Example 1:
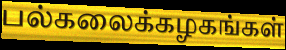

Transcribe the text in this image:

பல்கலைக்கழகங்கள்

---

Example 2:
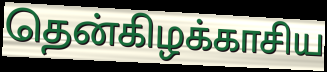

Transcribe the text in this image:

தென்கிழக்காசிய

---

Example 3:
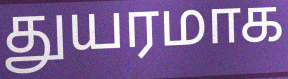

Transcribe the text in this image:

துயரமாக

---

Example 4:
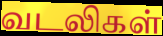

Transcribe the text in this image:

வடலிகள்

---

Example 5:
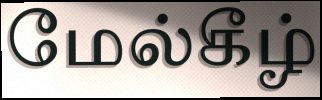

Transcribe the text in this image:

மேல்கீழ்